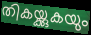
തികയ്ക്കുകയും